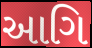
આગિ